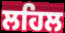
ਲਹਿਲ